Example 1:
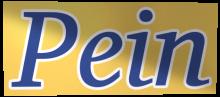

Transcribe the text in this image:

Pein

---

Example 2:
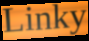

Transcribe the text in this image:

Linky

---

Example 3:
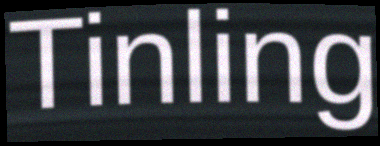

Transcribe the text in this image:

Tinling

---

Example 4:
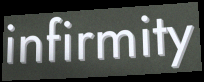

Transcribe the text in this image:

infirmity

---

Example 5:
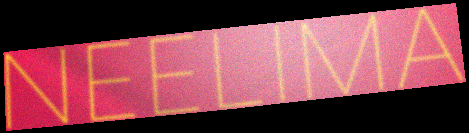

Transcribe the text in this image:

NEELIMA